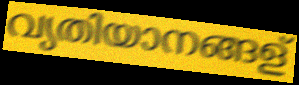
വ്യതിയാനങ്ങള്